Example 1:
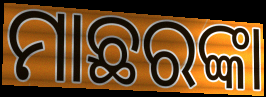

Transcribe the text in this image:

ମାଛରଙ୍କା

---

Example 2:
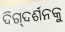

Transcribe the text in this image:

ଦିଗ୍‌ଦର୍ଶନକୁ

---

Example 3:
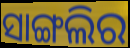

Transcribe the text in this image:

ସାଙ୍ଗଲିର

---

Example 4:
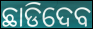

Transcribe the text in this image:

ଛାଡିଦେବ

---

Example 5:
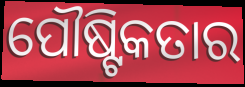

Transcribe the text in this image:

ପୌଷ୍ଟିକତାର